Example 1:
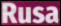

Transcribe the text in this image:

Rusa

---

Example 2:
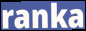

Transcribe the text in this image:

ranka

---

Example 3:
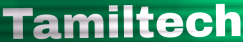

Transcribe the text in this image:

Tamiltech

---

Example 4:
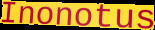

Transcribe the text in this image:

Inonotus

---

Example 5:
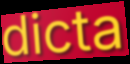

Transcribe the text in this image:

dicta